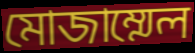
মোজাম্মেল